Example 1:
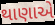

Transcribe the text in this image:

થાણાએ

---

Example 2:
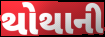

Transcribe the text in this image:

થોથાની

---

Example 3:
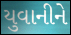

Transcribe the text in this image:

યુવાનીને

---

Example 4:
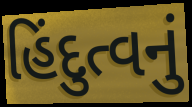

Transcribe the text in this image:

હિંદુત્વનું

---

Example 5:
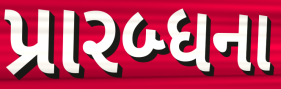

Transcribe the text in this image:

પ્રારબ્ધના